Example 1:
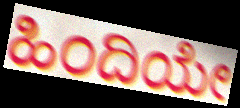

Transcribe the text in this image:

ಹಿಂದಿಯೇ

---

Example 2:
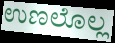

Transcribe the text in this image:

ಉಣಲೊಲ್ಲ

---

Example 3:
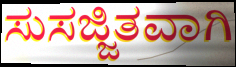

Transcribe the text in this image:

ಸುಸಜ್ಜಿತವಾಗಿ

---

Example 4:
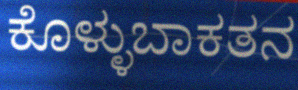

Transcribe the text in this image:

ಕೊಳ್ಳುಬಾಕತನ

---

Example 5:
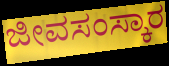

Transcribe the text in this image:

ಜೀವಸಂಸ್ಕಾರ